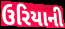
ઉરિયાની